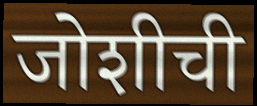
जोशीची